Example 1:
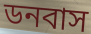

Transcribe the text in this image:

ডনবাস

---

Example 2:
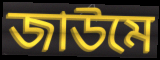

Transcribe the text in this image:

জাউমে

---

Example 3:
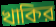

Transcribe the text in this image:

খাকির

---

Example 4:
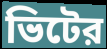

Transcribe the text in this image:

ভিটের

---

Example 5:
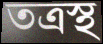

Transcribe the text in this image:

তত্রস্থ